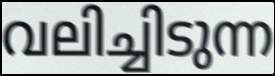
വലിച്ചിടുന്ന